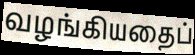
வழங்கியதைப்